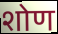
शोण